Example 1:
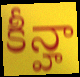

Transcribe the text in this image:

కీన్హా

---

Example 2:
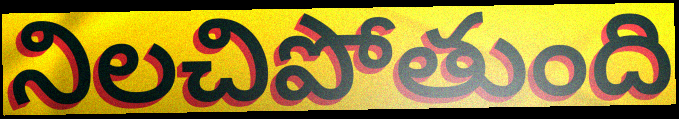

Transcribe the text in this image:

నిలచిపోతుంది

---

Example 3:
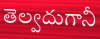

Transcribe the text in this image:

తెల్వదుగానీ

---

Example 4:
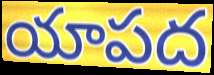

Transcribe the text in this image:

యాపద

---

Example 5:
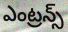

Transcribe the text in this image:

ఎంట్రన్స్